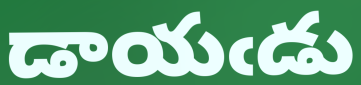
డాయఁడు